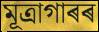
মূত্ৰাগাৰৰ